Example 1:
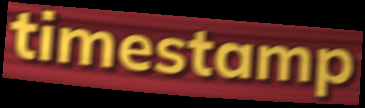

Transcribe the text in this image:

timestamp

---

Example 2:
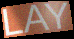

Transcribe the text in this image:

LAY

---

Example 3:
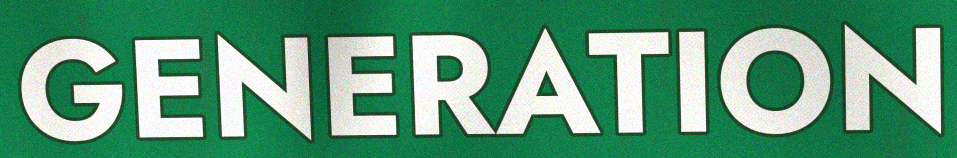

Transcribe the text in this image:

GENERATION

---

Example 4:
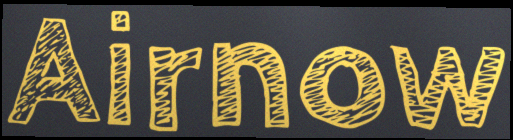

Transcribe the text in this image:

Airnow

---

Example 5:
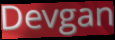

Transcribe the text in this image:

Devgan